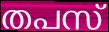
തപസ്